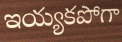
ఇయ్యకపోగా